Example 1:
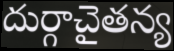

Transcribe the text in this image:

దుర్గాచైతన్య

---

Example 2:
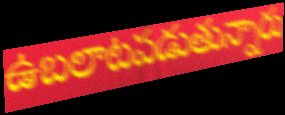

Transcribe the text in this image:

ఉబలాటపడుతున్నారు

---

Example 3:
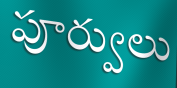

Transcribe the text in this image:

పూర్వులు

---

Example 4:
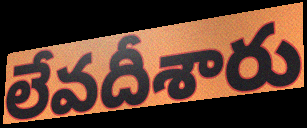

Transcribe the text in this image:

లేవదీశారు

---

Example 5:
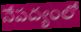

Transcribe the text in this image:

నేపద్యంలో